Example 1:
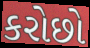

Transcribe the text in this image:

કરોછો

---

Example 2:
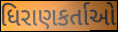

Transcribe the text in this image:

ધિરાણકર્તાઓ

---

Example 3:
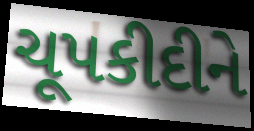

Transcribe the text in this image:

ચૂપકીદીને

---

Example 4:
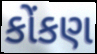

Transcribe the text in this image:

કોંકણ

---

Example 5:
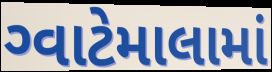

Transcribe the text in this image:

ગ્વાટેમાલામાં